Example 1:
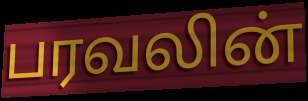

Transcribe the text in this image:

பரவலின்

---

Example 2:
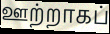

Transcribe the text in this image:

ஊற்றாகப்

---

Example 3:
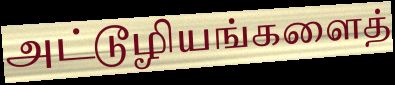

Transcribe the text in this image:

அட்டூழியங்களைத்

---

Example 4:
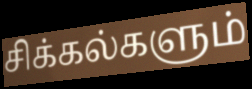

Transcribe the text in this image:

சிக்கல்களும்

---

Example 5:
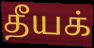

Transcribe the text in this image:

தீயக்